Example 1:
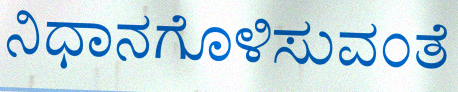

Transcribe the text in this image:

ನಿಧಾನಗೊಳಿಸುವಂತೆ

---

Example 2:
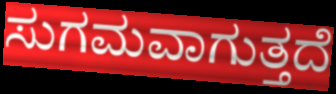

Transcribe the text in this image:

ಸುಗಮವಾಗುತ್ತದೆ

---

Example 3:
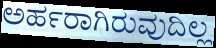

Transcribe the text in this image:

ಅರ್ಹರಾಗಿರುವುದಿಲ್ಲ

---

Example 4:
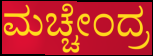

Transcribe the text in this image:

ಮಚ್ಚೇಂದ್ರ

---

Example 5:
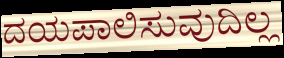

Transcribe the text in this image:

ದಯಪಾಲಿಸುವುದಿಲ್ಲ